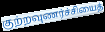
குற்றவுணர்ச்சியைத்